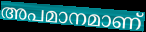
അപമാനമാണ്